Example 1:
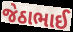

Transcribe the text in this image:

જેઠાભાઈ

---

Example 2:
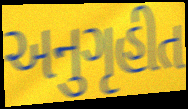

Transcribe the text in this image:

અનુગૃહીત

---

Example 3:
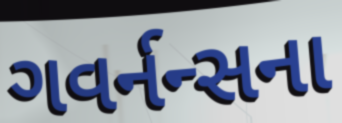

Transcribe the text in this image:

ગવર્નન્સના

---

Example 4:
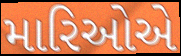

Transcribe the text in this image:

મારિઓએ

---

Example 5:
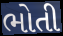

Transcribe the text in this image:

ભોતી